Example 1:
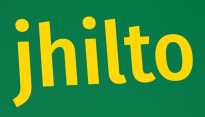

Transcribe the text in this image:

jhilto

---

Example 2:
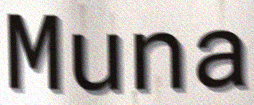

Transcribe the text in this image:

Muna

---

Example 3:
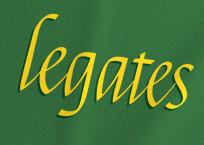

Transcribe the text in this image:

legates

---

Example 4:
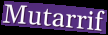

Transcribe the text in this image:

Mutarrif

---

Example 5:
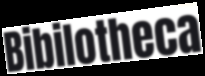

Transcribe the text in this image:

Bibilotheca